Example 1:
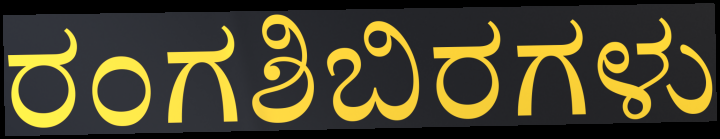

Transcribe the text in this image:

ರಂಗಶಿಬಿರಗಳು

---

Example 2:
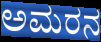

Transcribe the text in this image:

ಅಮರನ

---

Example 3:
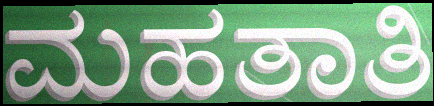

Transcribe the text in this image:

ಮಹತಾತಿ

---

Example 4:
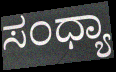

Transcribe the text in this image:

ಸಂಧ್ಯಾ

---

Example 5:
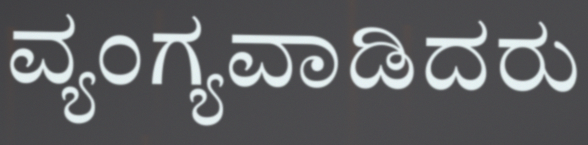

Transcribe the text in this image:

ವ್ಯಂಗ್ಯವಾಡಿದರು